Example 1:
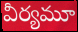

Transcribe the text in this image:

వీర్యమూ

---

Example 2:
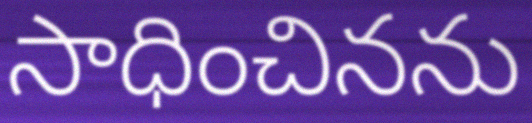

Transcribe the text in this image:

సాధించినను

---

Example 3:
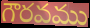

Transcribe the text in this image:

గౌరవము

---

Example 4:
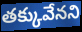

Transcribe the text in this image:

తక్కువేనని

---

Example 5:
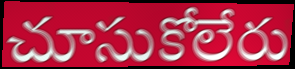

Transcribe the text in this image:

చూసుకోలేరు